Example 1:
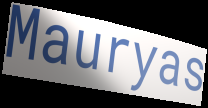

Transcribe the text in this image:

Mauryas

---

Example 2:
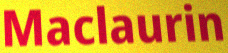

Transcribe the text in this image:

Maclaurin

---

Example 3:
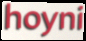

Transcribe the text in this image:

hoyni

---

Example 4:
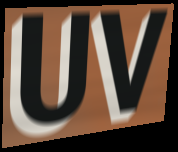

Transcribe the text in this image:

UV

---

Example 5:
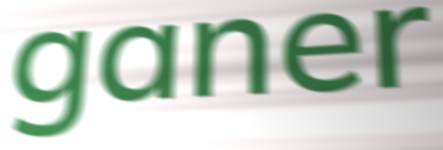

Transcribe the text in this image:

ganer